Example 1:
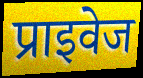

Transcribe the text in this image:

प्राइवेज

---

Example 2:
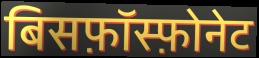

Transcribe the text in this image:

बिसफ़ॉस्फ़ोनेट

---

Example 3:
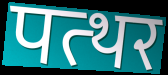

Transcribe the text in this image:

पत्‍थर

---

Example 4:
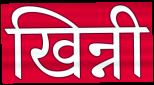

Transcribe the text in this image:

खिन्नी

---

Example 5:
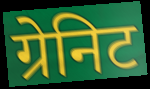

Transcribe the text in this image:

ग्रेनिट